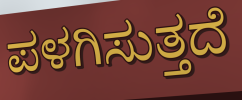
ಪಳಗಿಸುತ್ತದೆ